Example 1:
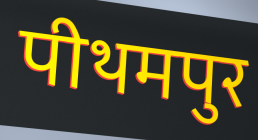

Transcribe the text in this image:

पीथमपुर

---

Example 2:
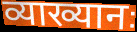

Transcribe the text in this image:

व्याख्यानः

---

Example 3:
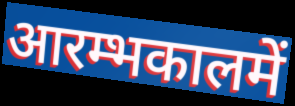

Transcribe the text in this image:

आरम्भकालमें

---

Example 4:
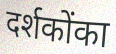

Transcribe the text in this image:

दर्शकोंका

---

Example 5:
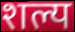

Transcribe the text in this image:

शल्य